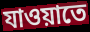
যাওয়াতে